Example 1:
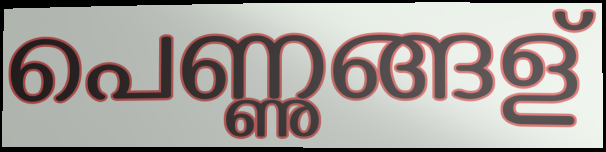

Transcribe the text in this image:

പെണ്ണുങ്ങള്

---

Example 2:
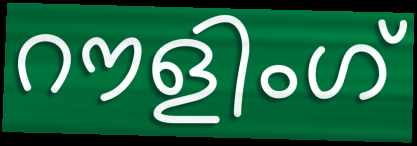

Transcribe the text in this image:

റൗളിംഗ്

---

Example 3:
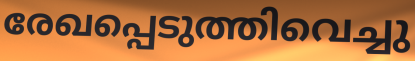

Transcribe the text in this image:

രേഖപ്പെടുത്തിവെച്ചു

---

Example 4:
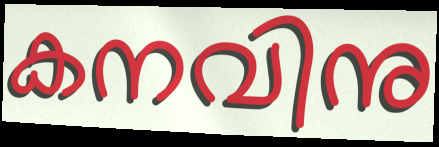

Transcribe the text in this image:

കനവിനു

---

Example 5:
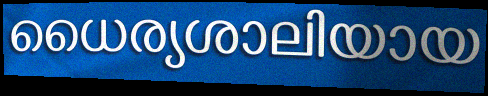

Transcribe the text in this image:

ധൈര്യശാലിയായ